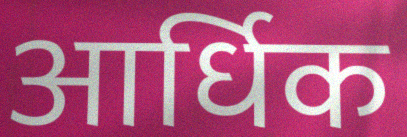
आर्धिक